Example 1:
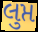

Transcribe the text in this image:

લુપ્ત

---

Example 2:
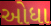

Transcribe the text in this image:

ઓધા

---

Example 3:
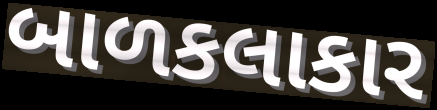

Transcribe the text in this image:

બાળકલાકાર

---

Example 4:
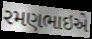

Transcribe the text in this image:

રમણભાઇએ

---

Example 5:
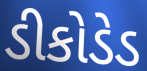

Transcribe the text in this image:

ડીકોડેડ